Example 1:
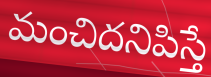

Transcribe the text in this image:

మంచిదనిపిస్తే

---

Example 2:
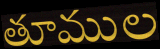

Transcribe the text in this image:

తూముల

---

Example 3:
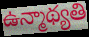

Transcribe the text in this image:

ఉన్మాథ్యతి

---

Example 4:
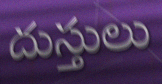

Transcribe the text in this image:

దుస్తులు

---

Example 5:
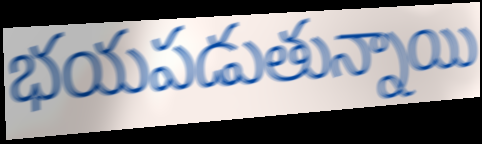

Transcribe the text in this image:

భయపడుతున్నాయి